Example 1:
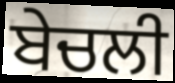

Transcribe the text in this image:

ਬੇਚਲੀ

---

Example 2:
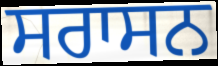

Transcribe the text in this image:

ਸਰਾਸਨ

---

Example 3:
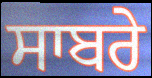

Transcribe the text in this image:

ਸਾਬਰੇ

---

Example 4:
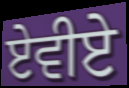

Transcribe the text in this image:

ਏਵੀਏ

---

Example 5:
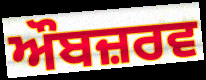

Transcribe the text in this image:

ਔਬਜ਼ਰਵ